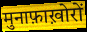
मुनाफ़ाख़ोरों